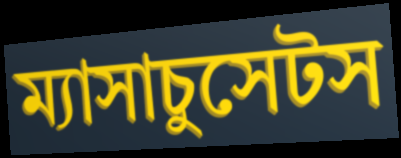
ম্যাসাচুসেটস